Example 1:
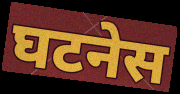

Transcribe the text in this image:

घटनेस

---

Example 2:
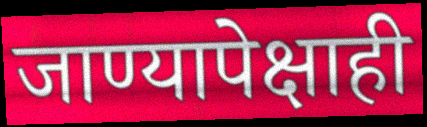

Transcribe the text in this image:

जाण्यापेक्षाही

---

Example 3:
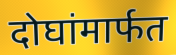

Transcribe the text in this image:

दोघांमार्फत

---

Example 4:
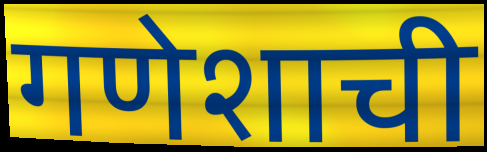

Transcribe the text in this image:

गणेशाची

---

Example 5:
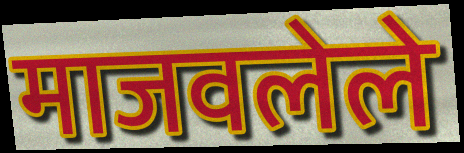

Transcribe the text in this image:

माजवलेले